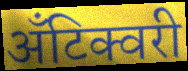
अँटिक्वरी